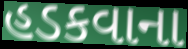
હડકવાના